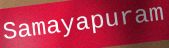
Samayapuram